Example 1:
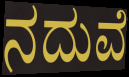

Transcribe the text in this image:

ನದುವೆ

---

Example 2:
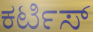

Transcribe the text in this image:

ಕರ್ಟಿಸ್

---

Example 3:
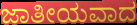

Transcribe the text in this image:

ಜಾತೀಯವಾದ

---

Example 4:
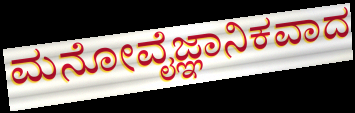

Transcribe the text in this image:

ಮನೋವೈಜ್ಞಾನಿಕವಾದ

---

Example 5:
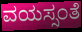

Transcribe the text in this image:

ವಯಸ್ಸಂತೆ